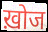
ख़ोज